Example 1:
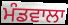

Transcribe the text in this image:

ਮੰਡਵਾਲਾ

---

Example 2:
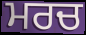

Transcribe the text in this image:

ਮਰਚ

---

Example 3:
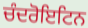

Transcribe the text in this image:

ਚੰਦਰੋਇਟਿਨ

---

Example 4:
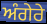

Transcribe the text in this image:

ਅੰਗੇਰੇ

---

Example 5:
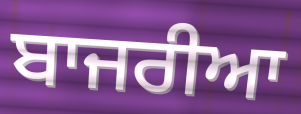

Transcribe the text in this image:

ਬਾਜਰੀਆ